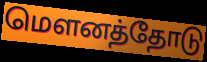
மௌனத்தோடு